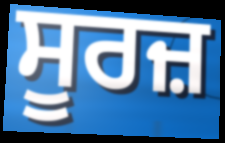
ਸੂਰਜ਼